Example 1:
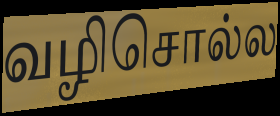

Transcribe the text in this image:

வழிசொல்ல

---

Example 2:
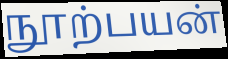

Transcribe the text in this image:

நூற்பயன்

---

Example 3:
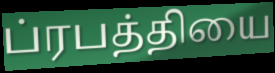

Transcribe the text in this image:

ப்ரபத்தியை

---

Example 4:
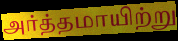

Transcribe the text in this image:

அர்த்தமாயிற்று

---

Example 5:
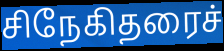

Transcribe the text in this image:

சிநேகிதரைச்